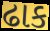
ઢાક